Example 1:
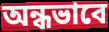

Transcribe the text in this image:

অন্ধভাবে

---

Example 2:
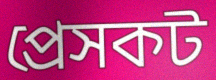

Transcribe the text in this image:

প্রেসকট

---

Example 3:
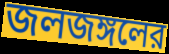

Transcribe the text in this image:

জলজঙ্গলের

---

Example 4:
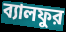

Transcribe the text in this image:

ব্যালফুর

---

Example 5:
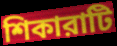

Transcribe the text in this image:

শিকারাটি